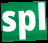
spl